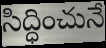
సిద్ధించునే